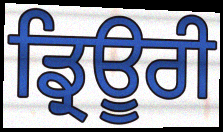
ਡ੍ਰਿਊਰੀ